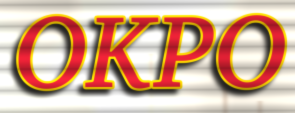
OKPO